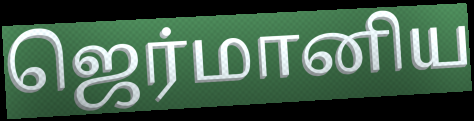
ஜெர்மானிய